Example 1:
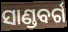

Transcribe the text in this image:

ସାଣ୍ଡବର୍ଗ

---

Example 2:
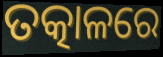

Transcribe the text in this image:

ତତ୍କାଳରେ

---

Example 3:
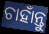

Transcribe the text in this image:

ଚାହାଁନ୍ତୁ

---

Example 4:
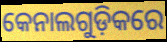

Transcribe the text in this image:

କେନାଲଗୁଡ଼ିକରେ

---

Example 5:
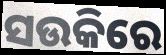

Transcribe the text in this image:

ସଉକିରେ